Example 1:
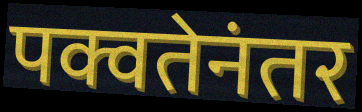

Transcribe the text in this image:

पक्वतेनंतर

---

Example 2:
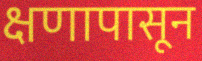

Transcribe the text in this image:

क्षणापासून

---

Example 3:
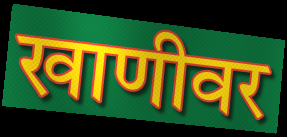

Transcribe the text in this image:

खाणीवर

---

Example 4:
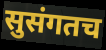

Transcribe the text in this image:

सुसंगतच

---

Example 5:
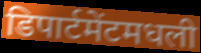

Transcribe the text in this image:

डिपार्टमेंटमधली